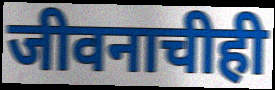
जीवनाचीही